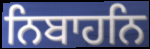
ਨਿਬਾਹਨਿ